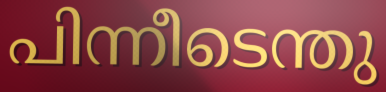
പിന്നീടെന്തു